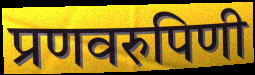
प्रणवरुपिणी